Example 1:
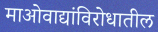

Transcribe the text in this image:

माओवाद्यांविरोधातील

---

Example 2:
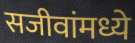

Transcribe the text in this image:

सजीवांमध्ये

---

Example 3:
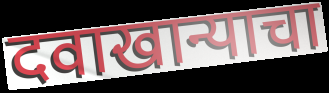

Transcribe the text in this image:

दवाखान्याचा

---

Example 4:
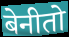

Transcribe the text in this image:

बेनीतो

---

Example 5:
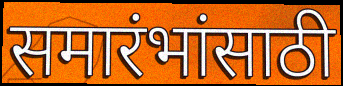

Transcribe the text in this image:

समारंभांसाठी